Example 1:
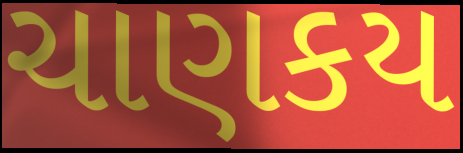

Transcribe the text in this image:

ચાણકય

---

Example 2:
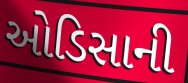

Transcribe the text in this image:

ઓડિસાની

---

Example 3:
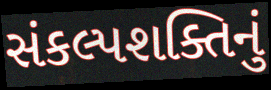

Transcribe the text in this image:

સંકલ્પશક્તિનું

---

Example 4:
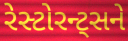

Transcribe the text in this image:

રેસ્ટોરન્ટ્સને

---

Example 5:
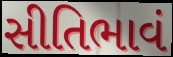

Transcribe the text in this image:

સીતિભાવં